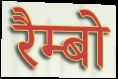
रैम्बो